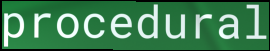
procedural